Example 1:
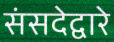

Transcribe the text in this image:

संसदेद्वारे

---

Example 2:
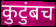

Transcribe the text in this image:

कुटुंबच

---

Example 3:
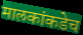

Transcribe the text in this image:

मालकांकडेच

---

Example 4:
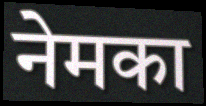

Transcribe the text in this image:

नेमका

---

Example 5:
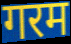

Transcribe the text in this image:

गरम